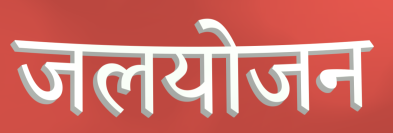
जलयोजन